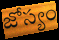
జోస్యం